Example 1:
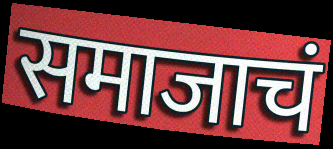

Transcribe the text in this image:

समाजाचं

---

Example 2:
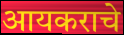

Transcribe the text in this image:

आयकराचे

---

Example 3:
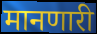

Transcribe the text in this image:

मानणारी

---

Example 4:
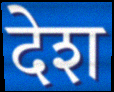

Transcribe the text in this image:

देश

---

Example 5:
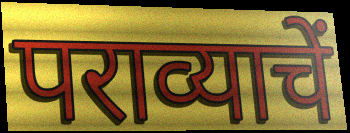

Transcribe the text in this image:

पराव्याचें